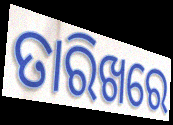
ତାରିଖରେ